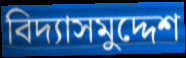
বিদ্যাসমুদ্দেশ